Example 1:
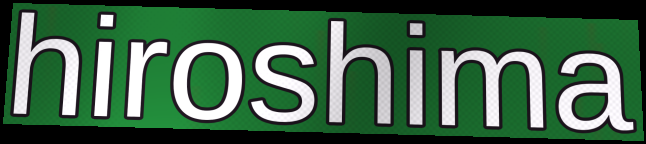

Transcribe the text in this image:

hiroshima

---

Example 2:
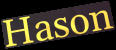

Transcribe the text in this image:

Hason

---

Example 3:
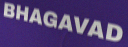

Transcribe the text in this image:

BHAGAVAD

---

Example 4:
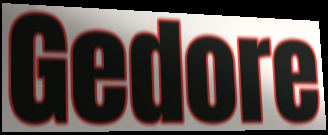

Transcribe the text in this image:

Gedore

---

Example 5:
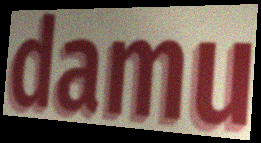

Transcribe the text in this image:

damu